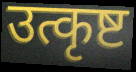
उत्कृष्ट